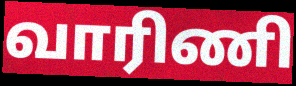
வாரிணி